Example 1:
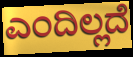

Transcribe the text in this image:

ಎಂದಿಲ್ಲದೆ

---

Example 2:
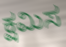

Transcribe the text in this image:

ಕ್ಷಮಿಸ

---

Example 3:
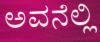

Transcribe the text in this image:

ಅವನೆಲ್ಲಿ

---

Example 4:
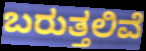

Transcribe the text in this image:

ಬರುತ್ತಲಿವೆ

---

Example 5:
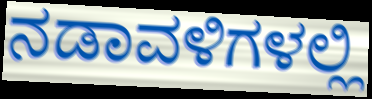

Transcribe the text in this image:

ನಡಾವಳಿಗಳಲ್ಲಿ